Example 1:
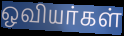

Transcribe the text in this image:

ஒவியர்கள்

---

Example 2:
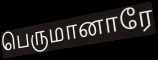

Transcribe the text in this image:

பெருமானாரே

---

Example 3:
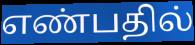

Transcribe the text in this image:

எண்பதில்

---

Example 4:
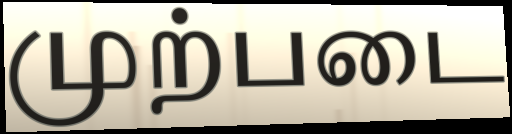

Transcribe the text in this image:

முற்படை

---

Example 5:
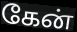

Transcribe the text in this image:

கேன்